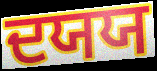
ਦਯਯ